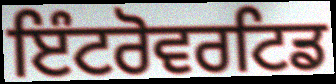
ਇੰਟਰੋਵਰਟਿਡ